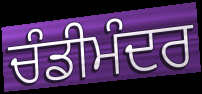
ਚੰਡੀਮੰਦਰ